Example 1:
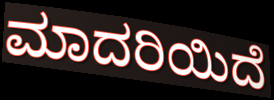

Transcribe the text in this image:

ಮಾದರಿಯಿದೆ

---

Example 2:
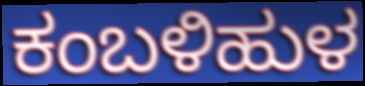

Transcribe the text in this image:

ಕಂಬಳಿಹುಳ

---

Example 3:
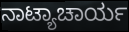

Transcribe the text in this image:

ನಾಟ್ಯಾಚಾರ್ಯ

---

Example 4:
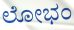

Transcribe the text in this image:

ಲೋಭಂ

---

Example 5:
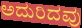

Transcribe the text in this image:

ಅದುರಿದವು